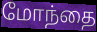
மோந்தை